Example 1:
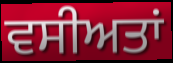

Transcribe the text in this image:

ਵਸੀਅਤਾਂ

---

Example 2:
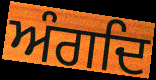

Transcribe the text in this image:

ਅੰਗਦਿ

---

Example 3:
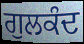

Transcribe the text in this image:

ਗੁਲਕੰਦ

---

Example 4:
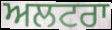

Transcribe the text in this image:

ਅਲਟਰਾ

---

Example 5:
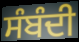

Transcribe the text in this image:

ਸੰਬੰਦੀ